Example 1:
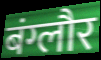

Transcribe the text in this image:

बंग्लौर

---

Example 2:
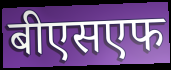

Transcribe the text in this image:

बीएसएफ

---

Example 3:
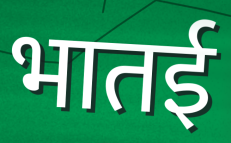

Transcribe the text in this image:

भातई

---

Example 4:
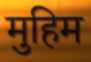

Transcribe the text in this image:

मुहिम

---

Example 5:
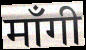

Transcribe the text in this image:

माँगी